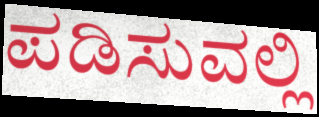
ಪಡಿಸುವಲ್ಲಿ